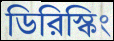
ডিরিস্কিং